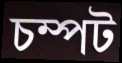
চম্পট